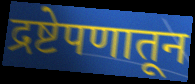
द्रष्टेपणातून